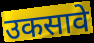
उकसावे